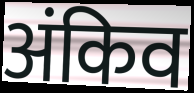
अंकिव